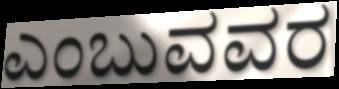
ಎಂಬುವವರ